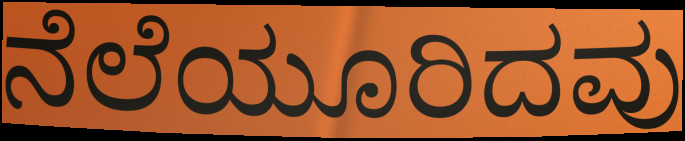
ನೆಲೆಯೂರಿದವು